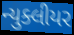
ન્યુક્લીયર